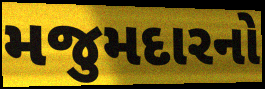
મજુમદારનો